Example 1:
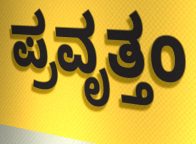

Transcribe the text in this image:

ಪ್ರವೃತ್ತಂ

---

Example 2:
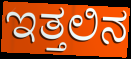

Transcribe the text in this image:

ಇತ್ತಲಿನ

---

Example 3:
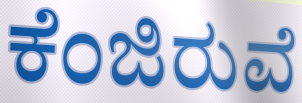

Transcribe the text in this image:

ಕೆಂಜಿರುವೆ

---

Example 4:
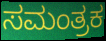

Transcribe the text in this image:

ಸಮಂತ್ರಕ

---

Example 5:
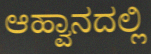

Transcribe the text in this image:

ಆಹ್ವಾನದಲ್ಲಿ